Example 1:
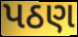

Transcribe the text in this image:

પઠણ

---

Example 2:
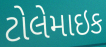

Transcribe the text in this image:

ટોલેમાઇક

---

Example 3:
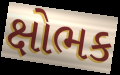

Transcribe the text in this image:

ક્ષોભક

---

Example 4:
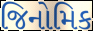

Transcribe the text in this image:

જિનોમિક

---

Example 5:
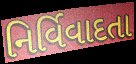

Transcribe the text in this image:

નિર્વિવાદતા